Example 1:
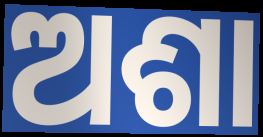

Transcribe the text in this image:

ଅଶା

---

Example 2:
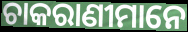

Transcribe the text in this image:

ଚାକରାଣୀମାନେ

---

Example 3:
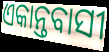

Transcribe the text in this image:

ଏକାନ୍ତବାସୀ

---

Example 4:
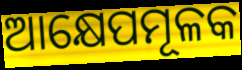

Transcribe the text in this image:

ଆକ୍ଷେପମୂଳକ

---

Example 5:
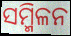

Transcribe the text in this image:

ସମ୍ମିଳନ